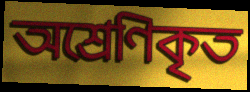
অশ্রেণিকৃত